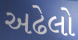
અઢેલો